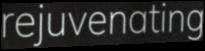
rejuvenating